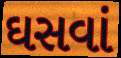
ઘસવાં